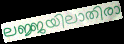
ലജ്ജയിലാതിരാ